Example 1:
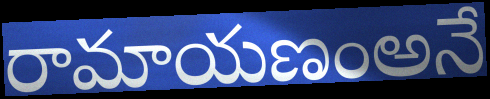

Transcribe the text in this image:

రామాయణంఅనే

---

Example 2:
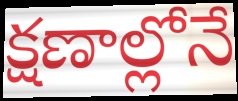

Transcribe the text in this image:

క్షణాల్లోనే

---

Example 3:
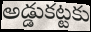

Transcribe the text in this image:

అడ్డుకట్టకు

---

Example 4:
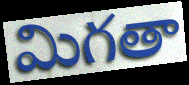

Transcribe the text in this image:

మిగతా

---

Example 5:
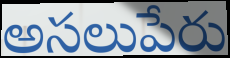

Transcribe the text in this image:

అసలుపేరు